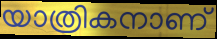
യാത്രികനാണ്